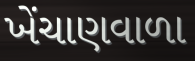
ખેંચાણવાળા